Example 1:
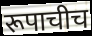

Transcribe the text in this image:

रूपाचीच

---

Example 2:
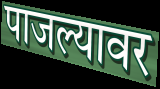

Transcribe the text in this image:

पाजल्यावर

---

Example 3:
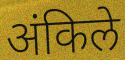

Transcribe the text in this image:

अंकिले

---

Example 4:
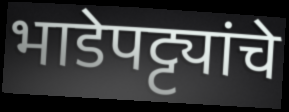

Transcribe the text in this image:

भाडेपट्ट्यांचे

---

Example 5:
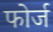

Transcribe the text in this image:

फोर्ज